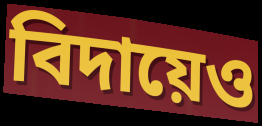
বিদায়েও